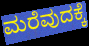
ಮರೆವುದಕ್ಕೆ